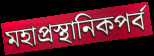
মহাপ্রস্থানিকপর্ব